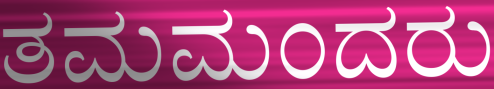
ತಮಮಂದರು